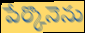
పేర్కొనెను